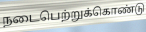
நடைபெற்றுக்கொண்டு